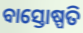
ବାସ୍ତୋଷ୍ପତି